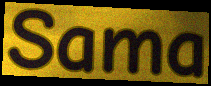
Sama